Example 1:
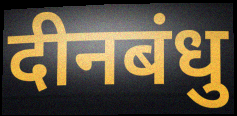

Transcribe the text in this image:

दीनबंधु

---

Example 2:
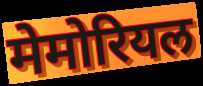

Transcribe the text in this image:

मेमोरियल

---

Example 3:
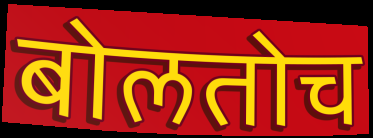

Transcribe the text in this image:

बोलतोच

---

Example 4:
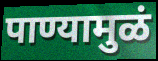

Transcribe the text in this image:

पाण्यामुळं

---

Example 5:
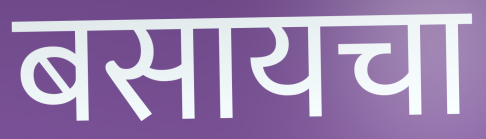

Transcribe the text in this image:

बसायचा